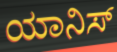
ಯಾನಿಸ್